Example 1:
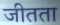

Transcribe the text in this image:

जीतता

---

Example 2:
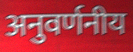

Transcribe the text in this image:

अनुवर्णनीय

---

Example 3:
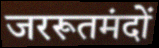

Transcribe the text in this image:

जररूतमंदों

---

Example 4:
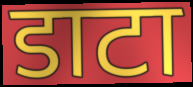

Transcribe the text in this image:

डाटा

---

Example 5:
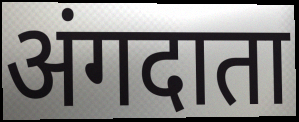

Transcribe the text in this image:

अंगदाता